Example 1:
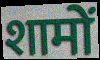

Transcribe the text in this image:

शामों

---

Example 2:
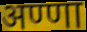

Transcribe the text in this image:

अण्णा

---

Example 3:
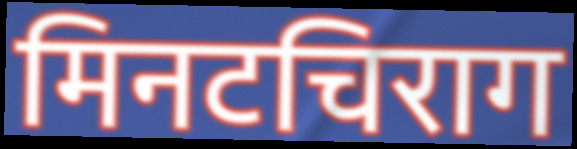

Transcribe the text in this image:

मिनटचिराग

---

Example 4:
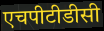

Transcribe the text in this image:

एचपीटीडीसी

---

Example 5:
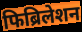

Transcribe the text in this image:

फिब्रिलेशन